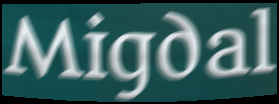
Migdal